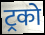
ट्रको